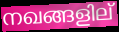
നഖങ്ങളില്